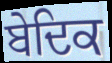
ਬੇਦਿਕ